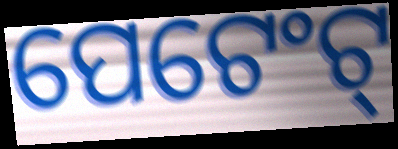
ପେଟେଂଟ୍